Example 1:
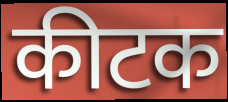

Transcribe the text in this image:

कीटक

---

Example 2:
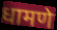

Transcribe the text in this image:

धामणे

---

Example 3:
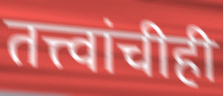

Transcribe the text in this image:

तत्त्वांचीही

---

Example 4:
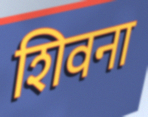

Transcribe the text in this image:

शिवना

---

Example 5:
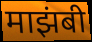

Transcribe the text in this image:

माझंबी